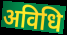
अविधि